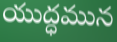
యుద్ధమున